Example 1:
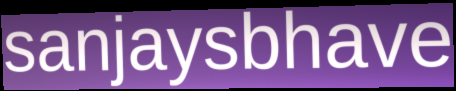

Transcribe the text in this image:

sanjaysbhave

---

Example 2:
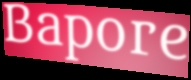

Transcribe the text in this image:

Bapore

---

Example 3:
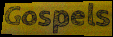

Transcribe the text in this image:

Gospels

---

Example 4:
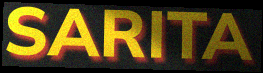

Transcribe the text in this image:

SARITA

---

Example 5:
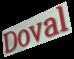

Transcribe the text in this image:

Doval